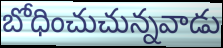
బోధించుచున్నవాడు